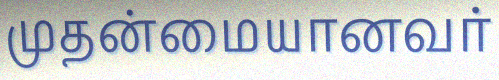
முதன்மையானவர்